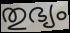
തുഭ്യം